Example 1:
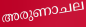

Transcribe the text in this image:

അരുണാചല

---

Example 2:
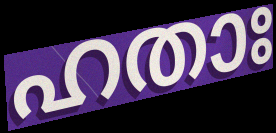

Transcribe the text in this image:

ഹതാഃ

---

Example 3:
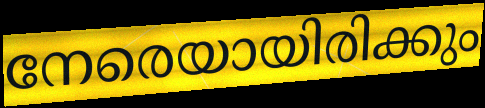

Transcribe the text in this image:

നേരെയായിരിക്കും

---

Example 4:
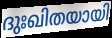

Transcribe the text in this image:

ദുഃഖിതയായി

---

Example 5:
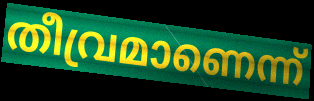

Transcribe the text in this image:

തീവ്രമാണെന്ന്